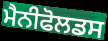
ਮੈਨੀਫੋਲਡਸ